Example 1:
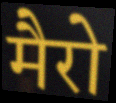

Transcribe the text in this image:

मैरो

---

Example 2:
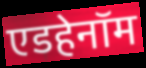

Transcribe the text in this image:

एडहेनॉम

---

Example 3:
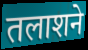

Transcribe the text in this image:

तलाशने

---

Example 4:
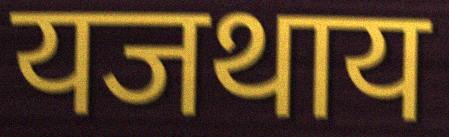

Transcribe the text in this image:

यजथाय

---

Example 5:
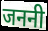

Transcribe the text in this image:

जननी